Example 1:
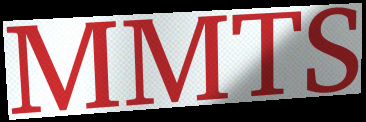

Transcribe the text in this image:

MMTS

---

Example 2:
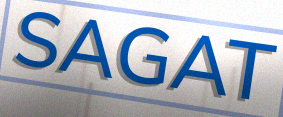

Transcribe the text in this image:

SAGAT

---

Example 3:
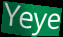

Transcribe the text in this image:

Yeye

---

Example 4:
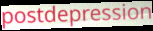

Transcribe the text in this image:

postdepression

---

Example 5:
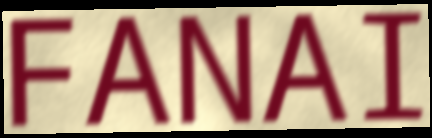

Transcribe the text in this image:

FANAI